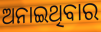
ଅନାଇଥିବାର